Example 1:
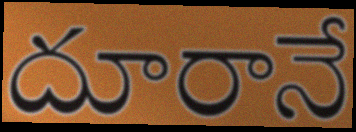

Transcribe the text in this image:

దూరానే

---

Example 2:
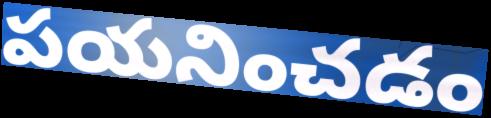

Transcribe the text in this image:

పయనించడం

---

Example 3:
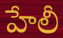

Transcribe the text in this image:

హేలీ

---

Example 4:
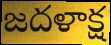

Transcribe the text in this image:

జదళాక్ష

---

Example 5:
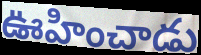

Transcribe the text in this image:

ఊహించాడు